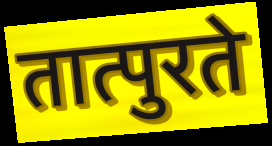
तात्पुरते